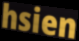
hsien